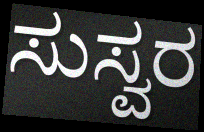
ಸುಸ್ವರ